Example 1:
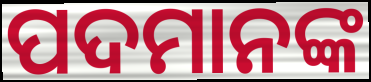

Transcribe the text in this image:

ପଦମାନଙ୍କ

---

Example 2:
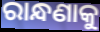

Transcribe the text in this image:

ରାନ୍ଧଣାକୁ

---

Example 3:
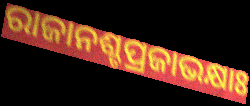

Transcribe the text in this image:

ରାଜାନଶ୍ଚପ୍ରଜାଭକ୍ଷାଃ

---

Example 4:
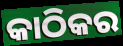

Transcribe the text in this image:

କାଠିକର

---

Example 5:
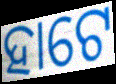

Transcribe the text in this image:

ହାଟେ